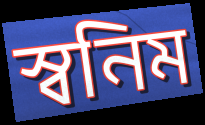
স্বনিম